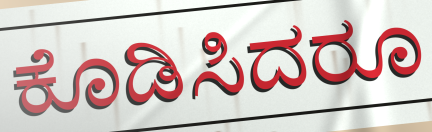
ಕೊಡಿಸಿದರೂ